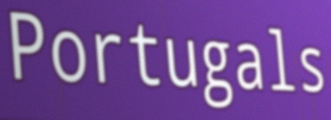
Portugals